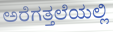
ಅರೆಗತ್ತಲೆಯಲ್ಲಿ